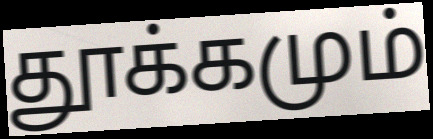
தூக்கமும்